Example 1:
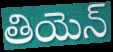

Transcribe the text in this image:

తియెన్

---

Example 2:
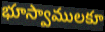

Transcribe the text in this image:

భూస్వాములకూ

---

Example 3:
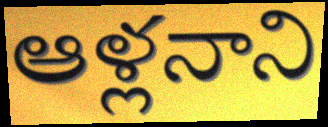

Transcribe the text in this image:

ఆళ్లనాని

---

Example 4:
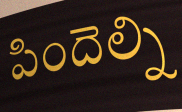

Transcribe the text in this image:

పిందెల్ని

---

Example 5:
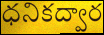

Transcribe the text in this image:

ధనికద్వార